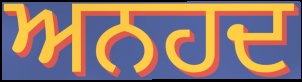
ਅਨਹਦ